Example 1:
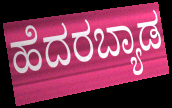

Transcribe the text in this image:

ಹೆದರಬ್ಯಾಡ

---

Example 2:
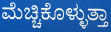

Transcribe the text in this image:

ಮೆಚ್ಚಿಕೊಳ್ಳುತ್ತಾ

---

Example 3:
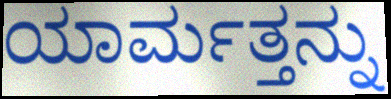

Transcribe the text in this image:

ಯಾರ್ಮತ್ತನ್ನು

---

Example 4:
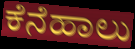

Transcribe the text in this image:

ಕೆನೆಹಾಲು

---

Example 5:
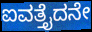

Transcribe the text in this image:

ಐವತ್ತೈದನೇ